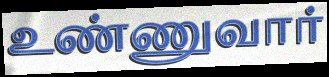
உண்ணுவார்